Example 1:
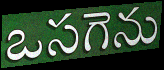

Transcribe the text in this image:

ఒసగెను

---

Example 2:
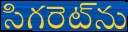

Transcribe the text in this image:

సిగరెట్‌ను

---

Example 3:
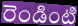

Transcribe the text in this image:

రెండింటి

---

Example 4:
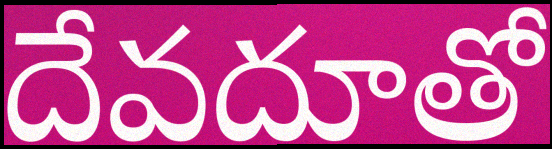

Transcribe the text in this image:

దేవదూతో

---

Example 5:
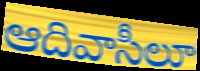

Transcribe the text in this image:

ఆదివాసీలూ